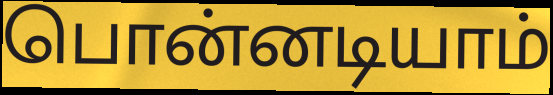
பொன்னடியாம்